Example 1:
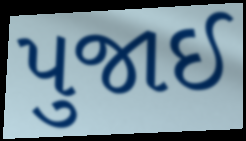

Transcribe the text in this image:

પુજાઈ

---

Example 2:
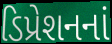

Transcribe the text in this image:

ડિપ્રેશનનાં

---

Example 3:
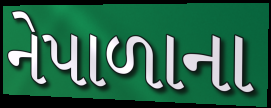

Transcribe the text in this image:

નેપાળાના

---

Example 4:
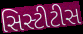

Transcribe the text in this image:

સિસ્ટીટીસ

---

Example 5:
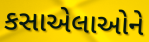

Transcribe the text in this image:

કસાએલાઓને